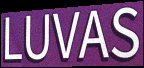
LUVAS